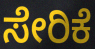
ಸೇರಿಕೆ